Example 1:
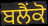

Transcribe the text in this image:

ਬਲੈਂਕੋ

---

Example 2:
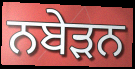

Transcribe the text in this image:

ਨਬੇੜਨ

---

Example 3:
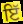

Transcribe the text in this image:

ਇੱ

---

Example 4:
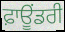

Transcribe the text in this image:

ਫ਼ਾਊਂਡਰੀ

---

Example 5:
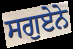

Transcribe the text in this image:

ਸਗੁਏਨੇ